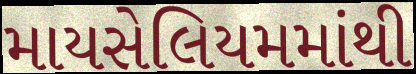
માયસેલિયમમાંથી